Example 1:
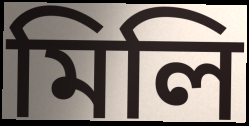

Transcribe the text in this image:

মিলি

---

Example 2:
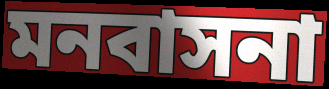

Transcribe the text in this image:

মনবাসনা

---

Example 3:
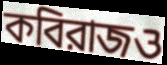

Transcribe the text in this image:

কবিরাজও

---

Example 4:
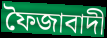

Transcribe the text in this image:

ফৈজাবাদী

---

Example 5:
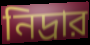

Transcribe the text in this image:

নিদ্রার